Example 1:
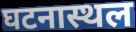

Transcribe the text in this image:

घटनास्थल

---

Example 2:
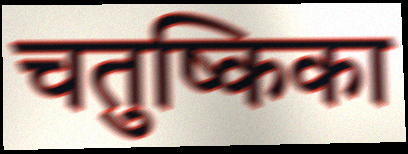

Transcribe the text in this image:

चतुष्किका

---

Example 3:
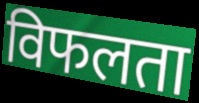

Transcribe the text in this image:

विफलता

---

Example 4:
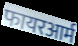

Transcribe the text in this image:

फायरआर्म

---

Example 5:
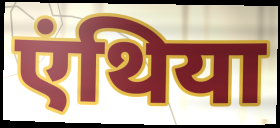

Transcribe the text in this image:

एंथिया